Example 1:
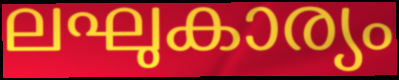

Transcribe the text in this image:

ലഘുകാര്യം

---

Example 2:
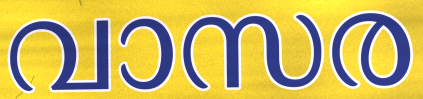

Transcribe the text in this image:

വാസര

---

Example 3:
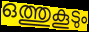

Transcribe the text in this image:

ഒത്തുകൂടും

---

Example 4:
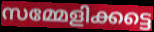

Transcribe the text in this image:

സമ്മേളിക്കട്ടെ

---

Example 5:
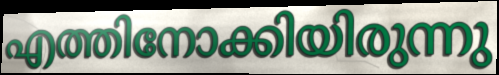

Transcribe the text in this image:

എത്തിനോക്കിയിരുന്നു